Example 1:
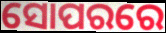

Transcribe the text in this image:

ସୋପରରେ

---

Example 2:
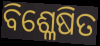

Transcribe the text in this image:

ବିଶ୍ଳେଷିତ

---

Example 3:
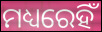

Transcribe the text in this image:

ମଧ୍ୟରେହିଁ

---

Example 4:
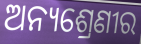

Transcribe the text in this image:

ଅନ୍ୟଶ୍ରେଣୀର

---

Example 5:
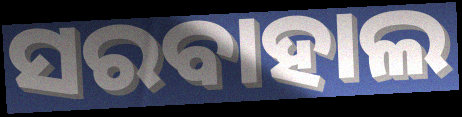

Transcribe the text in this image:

ସରବାହାଲ